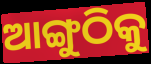
ଆଙ୍ଗୁଠିକୁ